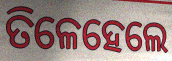
ତିଳେହେଲେ